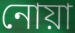
নোয়া